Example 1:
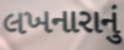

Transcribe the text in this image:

લખનારાનું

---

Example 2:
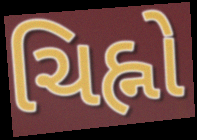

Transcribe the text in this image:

ચિહ્નો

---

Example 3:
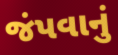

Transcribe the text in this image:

જંપવાનું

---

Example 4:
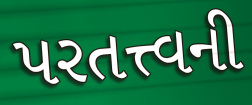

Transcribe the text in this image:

પરતત્ત્વની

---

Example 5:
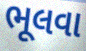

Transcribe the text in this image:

ભૂલવા